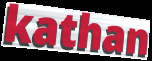
kathan